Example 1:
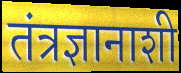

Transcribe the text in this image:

तंत्रज्ञानाशी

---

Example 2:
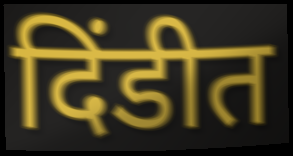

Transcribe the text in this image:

दिंडीत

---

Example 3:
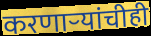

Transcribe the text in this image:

करणाऱ्यांचीही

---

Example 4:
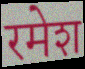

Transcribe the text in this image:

रमेश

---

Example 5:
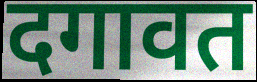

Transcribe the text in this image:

दगावत